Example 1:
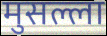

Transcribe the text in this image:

मुसल्ला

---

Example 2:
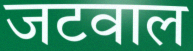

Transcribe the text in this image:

जटवाल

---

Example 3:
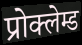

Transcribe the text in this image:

प्रोक्लेम्ड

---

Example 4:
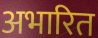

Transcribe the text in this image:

अभारित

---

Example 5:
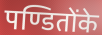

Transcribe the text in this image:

पण्डितोंके